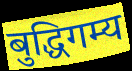
बुद्धिगम्य